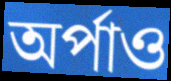
অর্পাও